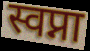
स्वप्ना